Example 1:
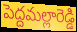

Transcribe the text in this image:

పెద్దమల్లారెడ్డి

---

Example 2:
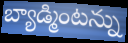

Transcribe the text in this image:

బ్యాడ్మింటన్ను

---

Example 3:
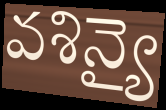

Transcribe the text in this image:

వశిన్యై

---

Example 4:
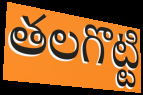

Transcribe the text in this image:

తలగొట్టి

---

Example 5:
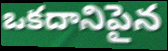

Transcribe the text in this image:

ఒకదానిపైన